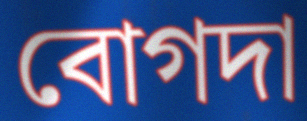
বোগদা